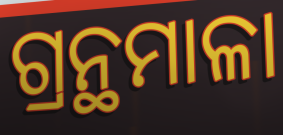
ଗ୍ରନ୍ଥମାଳା